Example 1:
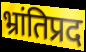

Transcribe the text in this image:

भ्रांतिप्रद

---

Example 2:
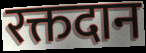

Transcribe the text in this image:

रक्तदान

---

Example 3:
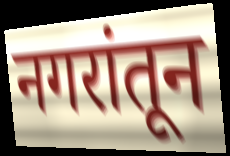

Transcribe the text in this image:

नगरांतून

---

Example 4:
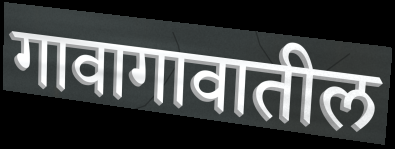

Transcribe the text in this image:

गावागावातील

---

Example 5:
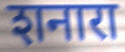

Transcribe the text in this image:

शनारा